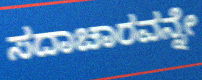
ಸದಾಚಾರವನ್ನೇ